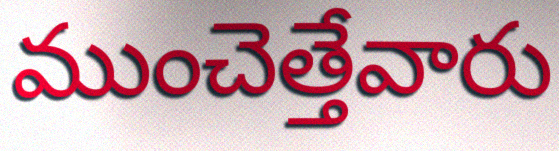
ముంచెత్తేవారు